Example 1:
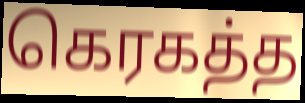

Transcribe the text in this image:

கெரகத்த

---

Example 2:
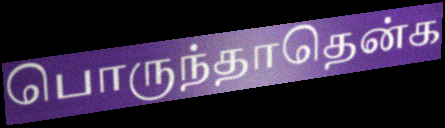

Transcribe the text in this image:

பொருந்தாதென்க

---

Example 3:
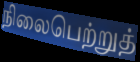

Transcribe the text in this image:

நிலைபெற்றுத்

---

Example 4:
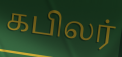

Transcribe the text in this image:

கபிலர்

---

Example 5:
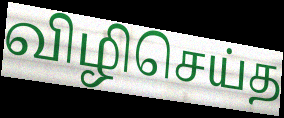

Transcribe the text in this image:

விழிசெய்த